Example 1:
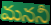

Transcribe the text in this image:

మననీ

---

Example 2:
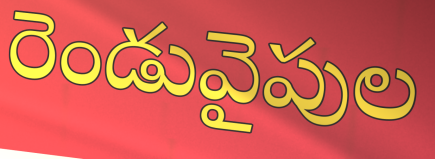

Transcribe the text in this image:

రెండువైపుల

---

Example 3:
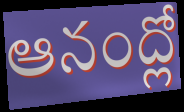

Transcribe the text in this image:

ఆనంద్లో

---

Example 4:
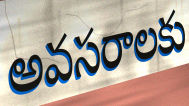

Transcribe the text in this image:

అవసరాలకు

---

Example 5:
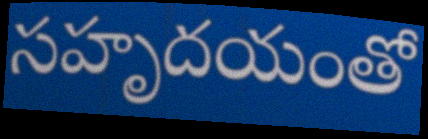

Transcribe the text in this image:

సహృదయంతో